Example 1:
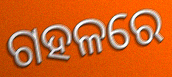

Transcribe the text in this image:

ଗହଳରେ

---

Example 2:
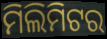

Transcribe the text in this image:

ମିଲିମିଟର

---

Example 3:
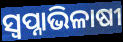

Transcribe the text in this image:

ସ୍ଵପ୍ନାଭିଳାଷୀ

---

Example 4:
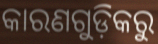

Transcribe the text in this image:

କାରଣଗୁଡ଼ିକରୁ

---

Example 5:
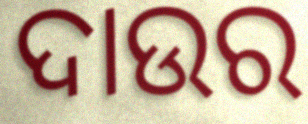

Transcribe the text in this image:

ଦାଉର